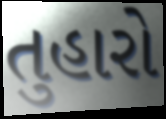
તુહારો